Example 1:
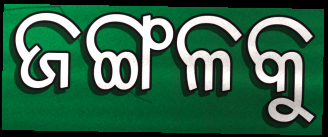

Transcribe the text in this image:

ଜଙ୍ଗଳକୁ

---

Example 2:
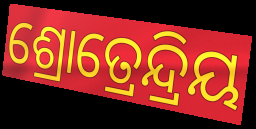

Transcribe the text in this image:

ଶ୍ରୋତ୍ରେନ୍ଦ୍ରିୟ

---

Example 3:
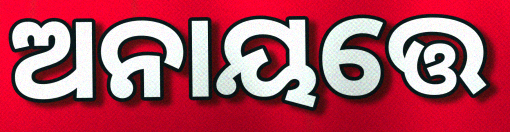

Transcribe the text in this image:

ଅନାୟତ୍ତେ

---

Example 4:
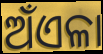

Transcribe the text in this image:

ଅଁଏଳା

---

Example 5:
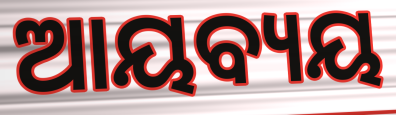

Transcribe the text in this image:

ଆୟବ୍ୟୟ